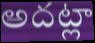
అదట్లా